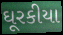
ઘૂરકીયા